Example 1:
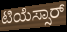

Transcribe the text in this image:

ಟಿಯೆಸ್ಸಾರ್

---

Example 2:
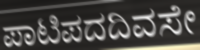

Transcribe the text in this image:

ಪಾಟಿಪದದಿವಸೇ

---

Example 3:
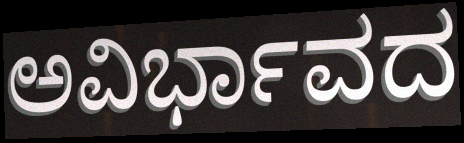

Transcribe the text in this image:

ಅವಿರ್ಭಾವದ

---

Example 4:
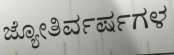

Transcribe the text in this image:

ಜ್ಯೋತಿರ್ವರ್ಷಗಳ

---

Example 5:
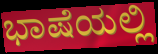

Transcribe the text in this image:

ಭಾಷೆಯಲ್ಲಿ